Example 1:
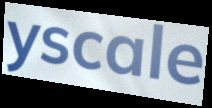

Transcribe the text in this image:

yscale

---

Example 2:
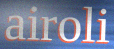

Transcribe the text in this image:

airoli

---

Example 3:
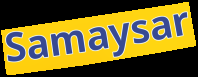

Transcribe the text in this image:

Samaysar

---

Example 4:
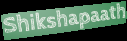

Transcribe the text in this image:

Shikshapaath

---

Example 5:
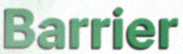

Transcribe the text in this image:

Barrier